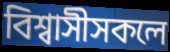
বিশ্বাসীসকলে